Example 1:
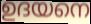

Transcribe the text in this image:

ഉദയനെ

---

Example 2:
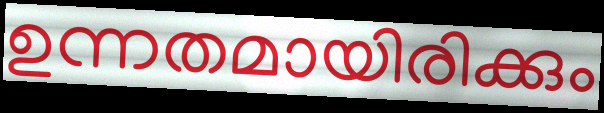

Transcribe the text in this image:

ഉന്നതമായിരിക്കും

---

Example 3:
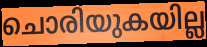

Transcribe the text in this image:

ചൊരിയുകയില്ല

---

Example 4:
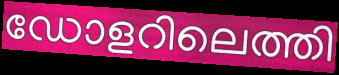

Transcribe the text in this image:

ഡോളറിലെത്തി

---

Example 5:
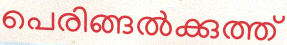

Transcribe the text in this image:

പെരിങ്ങൽക്കുത്ത്